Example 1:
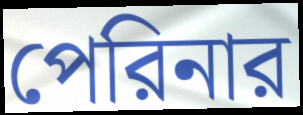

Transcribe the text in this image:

পেরিনার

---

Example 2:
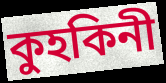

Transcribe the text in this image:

কুহকিনী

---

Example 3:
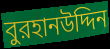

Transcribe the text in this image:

বুরহানউদ্দিন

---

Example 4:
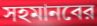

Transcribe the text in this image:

সহমানবের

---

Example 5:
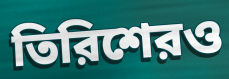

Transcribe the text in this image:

তিরিশেরও